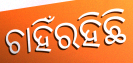
ଚାହିଁରହିଛି